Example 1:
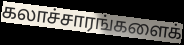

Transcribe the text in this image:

கலாச்சாரங்களைக்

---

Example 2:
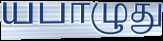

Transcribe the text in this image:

யபாழுது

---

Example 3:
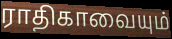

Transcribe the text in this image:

ராதிகாவையும்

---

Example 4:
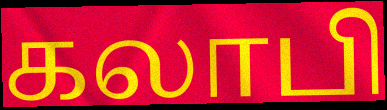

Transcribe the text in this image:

கலாபி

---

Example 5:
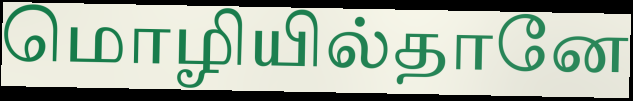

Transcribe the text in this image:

மொழியில்தானே